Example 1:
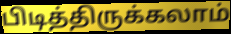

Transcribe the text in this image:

பிடித்திருக்கலாம்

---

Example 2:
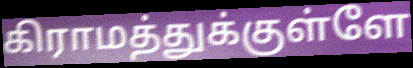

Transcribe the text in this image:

கிராமத்துக்குள்ளே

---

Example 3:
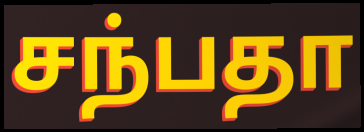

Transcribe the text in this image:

சந்பதா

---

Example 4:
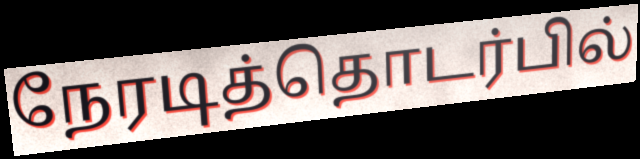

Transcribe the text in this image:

நேரடித்தொடர்பில்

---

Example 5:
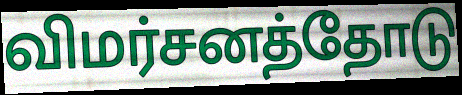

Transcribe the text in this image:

விமர்சனத்தோடு